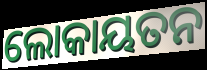
ଲୋକାୟତନ